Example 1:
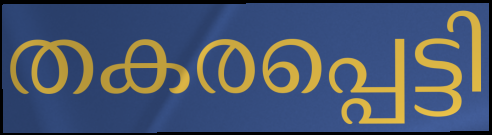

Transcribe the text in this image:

തകരപ്പെട്ടി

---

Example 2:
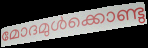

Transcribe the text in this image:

മോദമുൾക്കൊണ്ടു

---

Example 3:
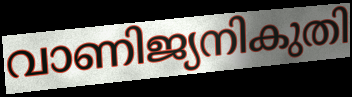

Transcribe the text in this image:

വാണിജ്യനികുതി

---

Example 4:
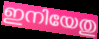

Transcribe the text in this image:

ഇനിയേതു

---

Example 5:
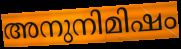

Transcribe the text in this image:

അനുനിമിഷം